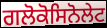
ਗਲੋਕੋਸਿਨੋਲੇਟ